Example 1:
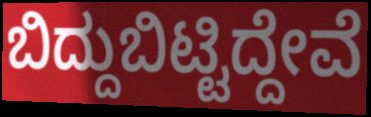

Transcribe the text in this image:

ಬಿದ್ದುಬಿಟ್ಟಿದ್ದೇವೆ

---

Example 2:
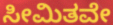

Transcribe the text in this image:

ಸೀಮಿತವೇ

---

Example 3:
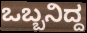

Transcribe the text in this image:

ಒಬ್ಬನಿದ್ದ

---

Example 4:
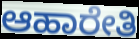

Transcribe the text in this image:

ಆಹಾರೇತಿ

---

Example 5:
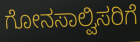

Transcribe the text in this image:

ಗೋನಸಾಲ್ವಿಸರಿಗೆ